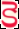
కె